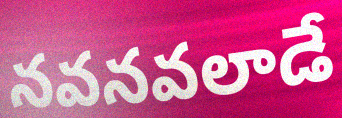
నవనవలాడే